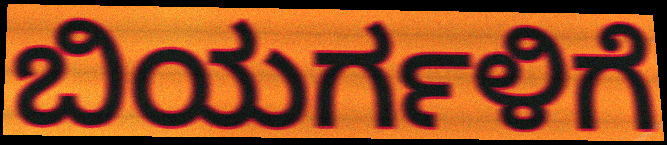
ಬಿಯರ್ಗಳಿಗೆ